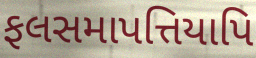
ફલસમાપત્તિયાપિ